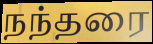
நந்தரை